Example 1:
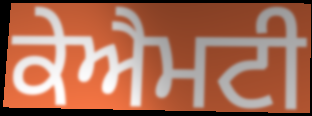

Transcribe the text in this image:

ਕੇਐਮਟੀ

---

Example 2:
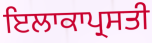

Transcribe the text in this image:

ਇਲਾਕਾਪ੍ਰਸਤੀ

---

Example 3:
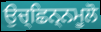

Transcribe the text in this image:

ਉਚ੍ਛਿਨ੍ਨਮੂਲੋ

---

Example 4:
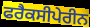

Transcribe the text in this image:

ਫਰੈਕਸੀਪੇਰੀਨ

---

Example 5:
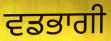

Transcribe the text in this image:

ਵਡਭਾਗੀ